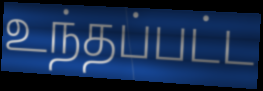
உந்தப்பட்ட